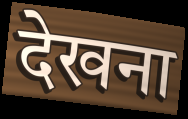
देखना